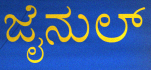
ಜೈನುಲ್